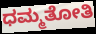
ಧಮ್ಮತೋತಿ